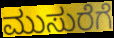
ಮುಸುರೆಗೆ